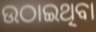
ଉଠାଇଥିବା